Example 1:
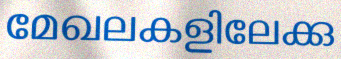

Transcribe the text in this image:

മേഖലകളിലേക്കു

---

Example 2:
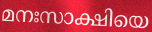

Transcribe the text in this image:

മനഃസാക്ഷിയെ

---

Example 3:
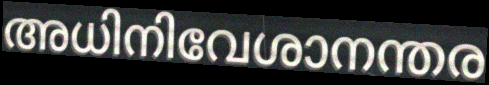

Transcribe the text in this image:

അധിനിവേശാനന്തര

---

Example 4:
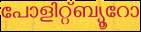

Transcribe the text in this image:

പോളിറ്റ്ബ്യൂറോ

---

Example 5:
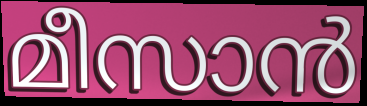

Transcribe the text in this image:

മീസാൻ